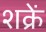
शक्रें